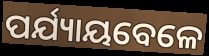
ପର୍ଯ୍ୟାୟବେଳେ